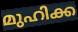
മുഹിക്ക